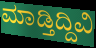
ಮಾಡ್ತಿದ್ದಿವಿ